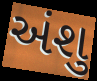
અંશુ